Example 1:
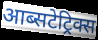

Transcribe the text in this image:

आब्सटेट्रिक्स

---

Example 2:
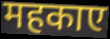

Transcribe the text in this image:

महकाए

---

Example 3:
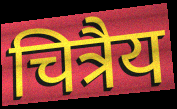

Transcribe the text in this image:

चित्रैय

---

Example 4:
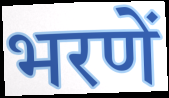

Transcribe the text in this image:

भरणें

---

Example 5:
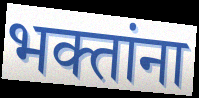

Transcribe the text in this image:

भक्तांना